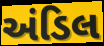
અંડિલ